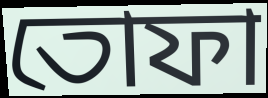
তোফা